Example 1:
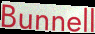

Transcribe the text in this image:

Bunnell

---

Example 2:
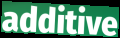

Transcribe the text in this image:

additive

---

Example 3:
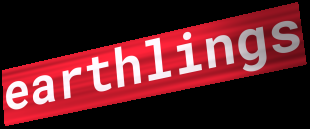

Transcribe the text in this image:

earthlings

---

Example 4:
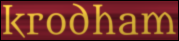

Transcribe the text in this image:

krodham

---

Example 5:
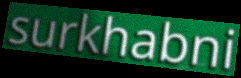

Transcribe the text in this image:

surkhabni